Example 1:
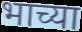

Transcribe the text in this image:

भाच्या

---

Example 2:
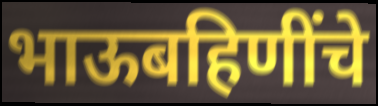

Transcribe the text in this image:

भाऊबहिणींचे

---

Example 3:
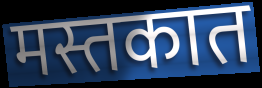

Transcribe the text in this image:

मस्तकात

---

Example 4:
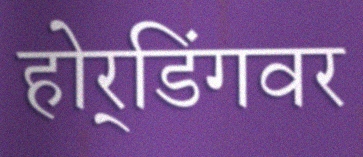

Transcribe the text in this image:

होर्डिंगवर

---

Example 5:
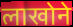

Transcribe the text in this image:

लाखोने